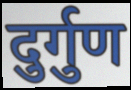
दुर्गुण